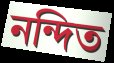
নন্দিত